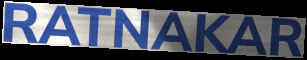
RATNAKAR